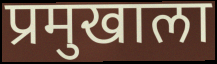
प्रमुखाला